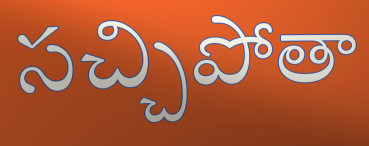
సచ్చిపోతా